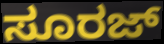
ಸೂರಜ್